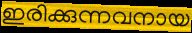
ഇരിക്കുന്നവനായ